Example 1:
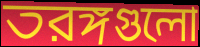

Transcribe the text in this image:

তরঙ্গগুলো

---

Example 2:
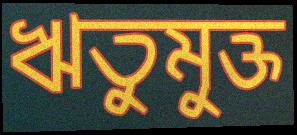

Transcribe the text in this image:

ঋতুমুক্ত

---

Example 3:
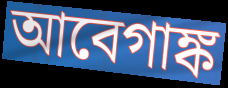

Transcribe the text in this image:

আবেগাঙ্ক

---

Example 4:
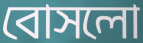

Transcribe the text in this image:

বোসলো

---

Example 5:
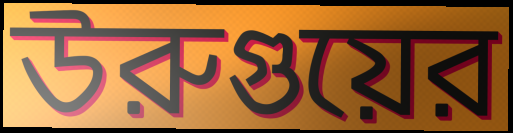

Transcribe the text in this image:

উরুগুয়ের